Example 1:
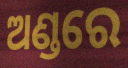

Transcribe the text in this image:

ଅଣ୍ଡରେ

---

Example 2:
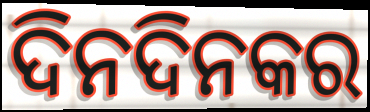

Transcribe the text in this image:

ଦିନଦିନକର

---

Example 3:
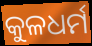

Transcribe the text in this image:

କୁଳଧର୍ମ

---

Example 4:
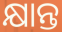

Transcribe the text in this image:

କ୍ଷାନ୍ତ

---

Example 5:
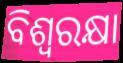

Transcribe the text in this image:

ବିଶ୍ୱରକ୍ଷା